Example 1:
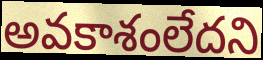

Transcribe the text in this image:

అవకాశంలేదని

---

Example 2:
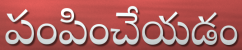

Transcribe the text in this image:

పంపించేయడం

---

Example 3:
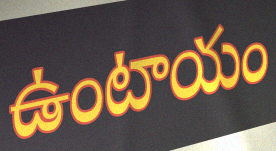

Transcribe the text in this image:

ఉంటాయం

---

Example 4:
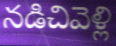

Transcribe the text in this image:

నడిచివెళ్లి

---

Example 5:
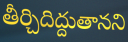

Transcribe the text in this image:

తీర్చిదిద్దుతానని